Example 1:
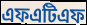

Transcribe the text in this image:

এফএটিএফ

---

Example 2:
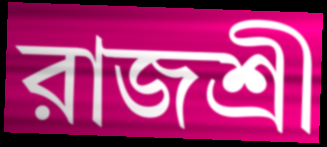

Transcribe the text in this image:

রাজশ্রী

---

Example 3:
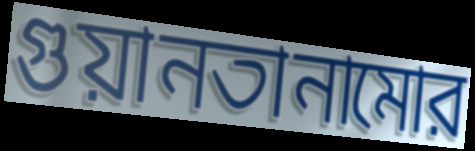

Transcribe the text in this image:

গুয়ানতানামোর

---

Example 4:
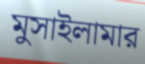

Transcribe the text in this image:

মুসাইলামার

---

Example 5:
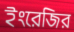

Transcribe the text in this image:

ইংরেজির